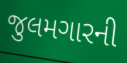
જુલમગારની